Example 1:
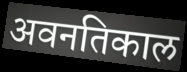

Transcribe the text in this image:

अवनतिकाल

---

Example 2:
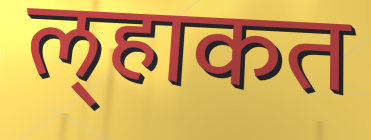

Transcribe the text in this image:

ल्हाकत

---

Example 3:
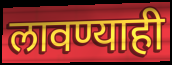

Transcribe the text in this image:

लावण्याही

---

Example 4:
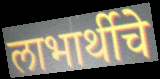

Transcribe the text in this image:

लाभार्थीचे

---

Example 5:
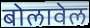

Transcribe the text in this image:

बोलावेल